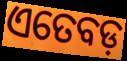
ଏତେବଡ଼